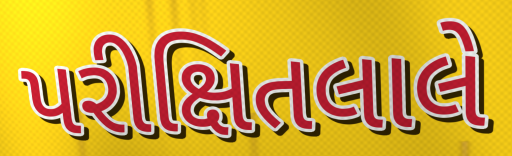
પરીક્ષિતલાલે